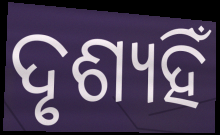
ଦୃଶ୍ୟହିଁ